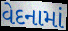
વેદનામાં